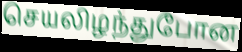
செயலிழந்துபோன